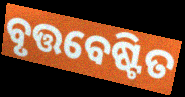
ବୃତ୍ତବେଷ୍ଟିତ